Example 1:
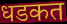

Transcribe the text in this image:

धडकत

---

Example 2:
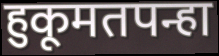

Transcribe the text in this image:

हुकूमतपन्हा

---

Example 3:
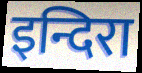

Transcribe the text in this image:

इन्दिरा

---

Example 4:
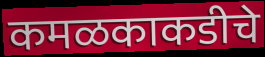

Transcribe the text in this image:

कमळकाकडीचे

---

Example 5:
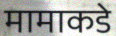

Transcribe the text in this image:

मामाकडे